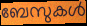
ബേസുകൾ